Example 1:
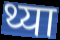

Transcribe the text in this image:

थ्या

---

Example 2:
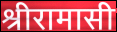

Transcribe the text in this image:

श्रीरामासी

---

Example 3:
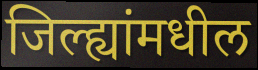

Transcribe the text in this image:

जिल्ह्यांमधील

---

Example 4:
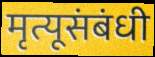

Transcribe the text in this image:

मृत्यूसंबंधी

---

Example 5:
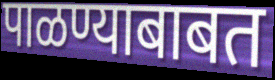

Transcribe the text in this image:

पाळण्याबाबत